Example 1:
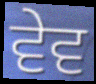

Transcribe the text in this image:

ਵੇਵ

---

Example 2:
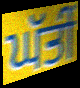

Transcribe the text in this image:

ਘੱਤੀਂ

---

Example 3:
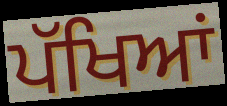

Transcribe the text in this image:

ਪੱਖਿਆਂ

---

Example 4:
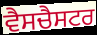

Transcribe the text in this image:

ਵੈਸਚੈਸਟਰ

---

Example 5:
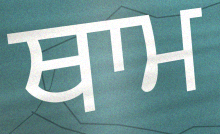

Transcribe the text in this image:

ਥਾਮ